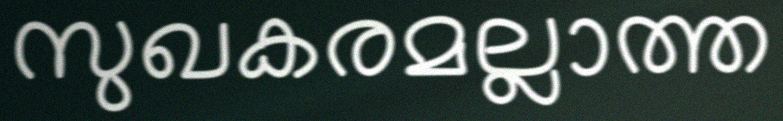
സുഖകരമല്ലാത്ത